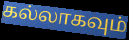
கல்லாகவும்